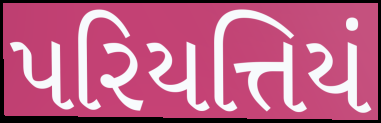
પરિયત્તિયં